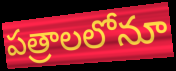
పత్రాలలోనూ